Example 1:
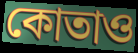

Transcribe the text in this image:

কোতাও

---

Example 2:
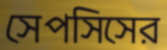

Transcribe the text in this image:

সেপসিসের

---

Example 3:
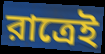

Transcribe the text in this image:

রাত্রেই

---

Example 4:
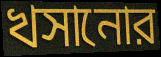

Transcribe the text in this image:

খসানোর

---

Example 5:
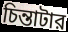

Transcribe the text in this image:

চিন্তাটার